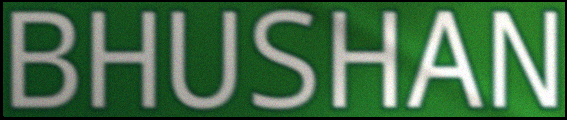
BHUSHAN